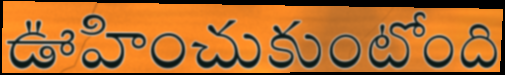
ఊహించుకుంటోంది